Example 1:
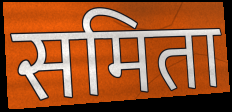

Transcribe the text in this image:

समिता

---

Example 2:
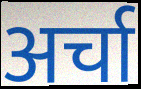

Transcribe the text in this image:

अर्चा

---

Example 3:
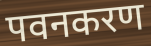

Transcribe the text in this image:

पवनकरण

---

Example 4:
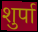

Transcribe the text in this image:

शुर्पा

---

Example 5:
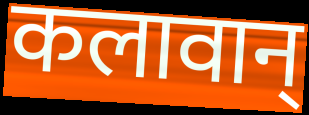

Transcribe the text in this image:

कलावान्